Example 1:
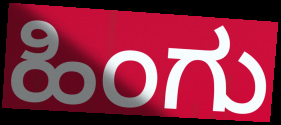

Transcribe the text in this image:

ಹಿಂಗು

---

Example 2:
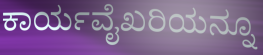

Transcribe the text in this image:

ಕಾರ್ಯವೈಖರಿಯನ್ನೂ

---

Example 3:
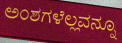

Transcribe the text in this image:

ಅಂಶಗಳೆಲ್ಲವನ್ನೂ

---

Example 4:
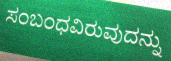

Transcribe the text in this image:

ಸಂಬಂಧವಿರುವುದನ್ನು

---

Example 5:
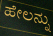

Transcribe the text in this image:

ಹೇಲನ್ನು